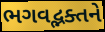
ભગવદ્ભક્તને